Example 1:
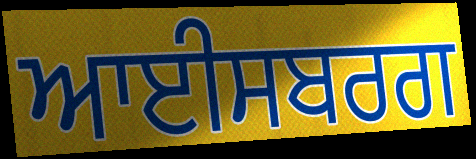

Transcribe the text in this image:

ਆਈਸਬਰਗ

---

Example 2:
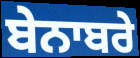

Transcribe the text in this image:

ਬੇਨਾਬਰੇ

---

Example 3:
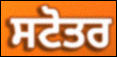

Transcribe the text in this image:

ਸਟੋਤਰ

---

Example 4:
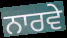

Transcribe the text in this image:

ਨਾਰਵੇ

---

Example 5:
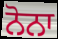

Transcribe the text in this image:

ਨੋਨਾ